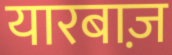
यारबाज़